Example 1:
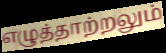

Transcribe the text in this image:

எழுத்தாற்றலும்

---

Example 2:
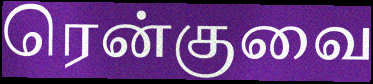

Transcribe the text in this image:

ரென்குவை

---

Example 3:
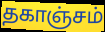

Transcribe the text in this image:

தகாஞ்சம்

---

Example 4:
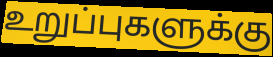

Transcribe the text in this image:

உறுப்புகளுக்கு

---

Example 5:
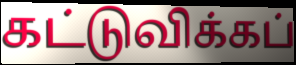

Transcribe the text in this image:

கட்டுவிக்கப்